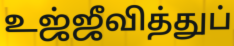
உஜ்ஜீவித்துப்